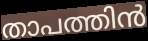
താപത്തിൻ